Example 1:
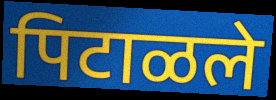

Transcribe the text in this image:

पिटाळले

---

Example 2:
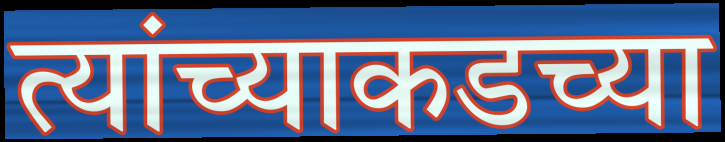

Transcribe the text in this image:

त्यांच्याकडच्या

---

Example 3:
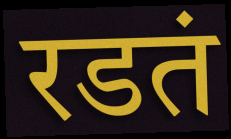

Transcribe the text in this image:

रडतं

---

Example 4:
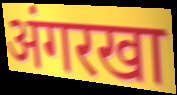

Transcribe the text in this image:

अंगरखा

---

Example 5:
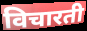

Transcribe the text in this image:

विचारती